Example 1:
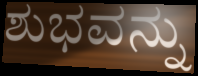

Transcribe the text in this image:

ಶುಭವನ್ನು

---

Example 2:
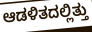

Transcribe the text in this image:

ಆಡಳಿತದಲ್ಲಿತ್ತು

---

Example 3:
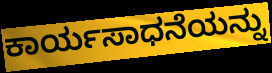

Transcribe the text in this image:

ಕಾರ್ಯಸಾಧನೆಯನ್ನು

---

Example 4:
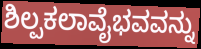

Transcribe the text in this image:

ಶಿಲ್ಪಕಲಾವೈಭವವನ್ನು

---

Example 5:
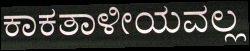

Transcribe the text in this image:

ಕಾಕತಾಳೀಯವಲ್ಲ